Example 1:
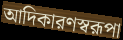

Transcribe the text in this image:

আদিকারণস্বরূপা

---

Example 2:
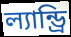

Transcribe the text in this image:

ল্যান্ড্রি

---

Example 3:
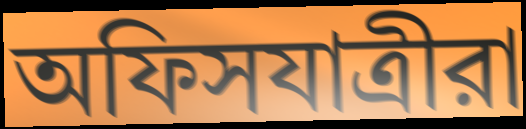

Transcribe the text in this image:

অফিসযাত্রীরা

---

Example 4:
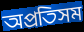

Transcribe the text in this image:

অপ্রতিসম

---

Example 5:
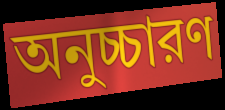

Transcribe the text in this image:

অনুচ্চারণ